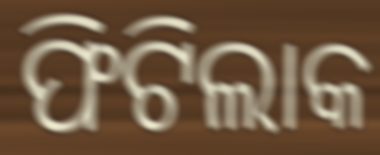
ଫିଟିଲାକ